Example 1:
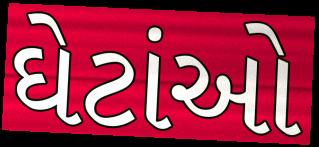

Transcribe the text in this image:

ઘેટાંઓ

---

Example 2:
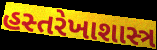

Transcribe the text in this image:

હસ્તરેખાશાસ્ત્ર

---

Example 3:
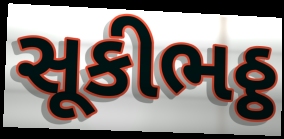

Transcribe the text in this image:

સૂકીભઠ્ઠ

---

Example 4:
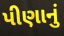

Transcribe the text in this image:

પીણાનું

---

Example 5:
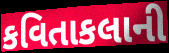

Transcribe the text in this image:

કવિતાકલાની